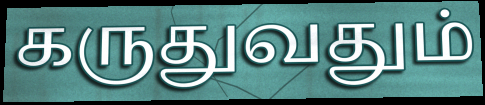
கருதுவதும்